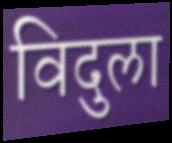
विदुला